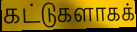
கட்டுகளாகக்